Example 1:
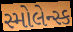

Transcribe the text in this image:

સ્મોલેન્સ્ક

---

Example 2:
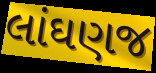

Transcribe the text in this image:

લાંઘણજ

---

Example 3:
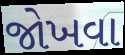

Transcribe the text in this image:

જોખવા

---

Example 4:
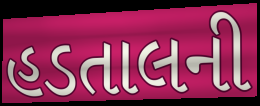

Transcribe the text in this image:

હડતાલની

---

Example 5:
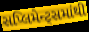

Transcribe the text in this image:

સપ્લિમેન્ટ્સમાંથી